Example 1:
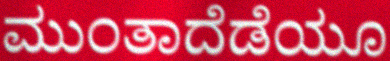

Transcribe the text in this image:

ಮುಂತಾದೆಡೆಯೂ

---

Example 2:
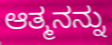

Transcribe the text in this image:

ಆತ್ಮನನ್ನು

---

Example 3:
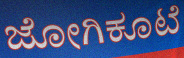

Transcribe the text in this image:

ಜೋಗಿಕೂಟೆ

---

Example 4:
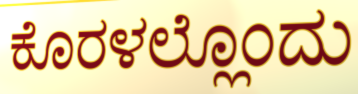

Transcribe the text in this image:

ಕೊರಳಲ್ಲೊಂದು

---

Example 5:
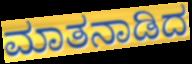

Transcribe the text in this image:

ಮಾತನಾಡಿದ